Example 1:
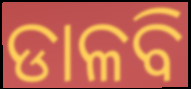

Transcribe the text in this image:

ଡାଳବି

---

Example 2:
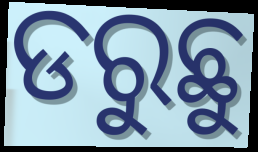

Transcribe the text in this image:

ଡରୁଛୁ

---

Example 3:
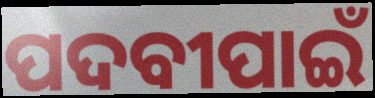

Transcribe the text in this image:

ପଦବୀପାଇଁ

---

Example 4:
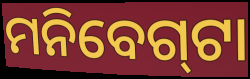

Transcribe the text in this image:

ମନିବେଗ୍‍ଟା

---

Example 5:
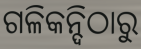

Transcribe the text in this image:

ଗଳିକନ୍ଦିଠାରୁ